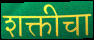
शक्तीचा